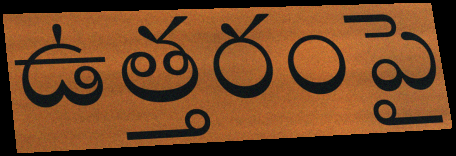
ఉత్తరంపై